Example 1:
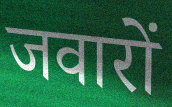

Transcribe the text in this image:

जवारों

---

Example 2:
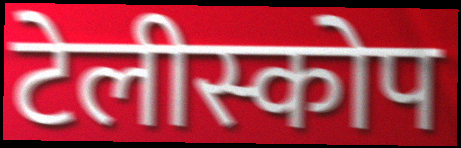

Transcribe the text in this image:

टेलीस्‍कोप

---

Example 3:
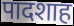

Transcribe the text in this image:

पादशाह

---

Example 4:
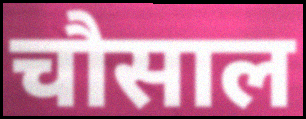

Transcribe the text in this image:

चौसाल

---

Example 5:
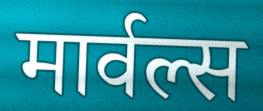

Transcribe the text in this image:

मार्वल्स